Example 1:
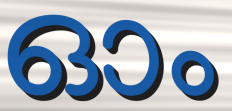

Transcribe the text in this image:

ഓം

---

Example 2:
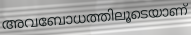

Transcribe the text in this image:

അവബോധത്തിലൂടെയാണ്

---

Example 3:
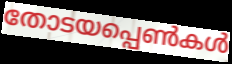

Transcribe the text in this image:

തോടയപ്പെൺകൾ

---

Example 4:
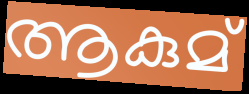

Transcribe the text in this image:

ആകുമ്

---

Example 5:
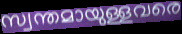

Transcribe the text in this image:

സ്വന്തമായുള്ളവരെ